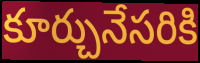
కూర్చునేసరికి